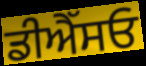
ਡੀਐੱਸਓ